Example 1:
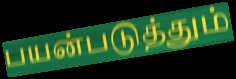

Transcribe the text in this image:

பயன்படுத்தும்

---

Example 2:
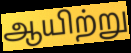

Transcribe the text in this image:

ஆயிற்று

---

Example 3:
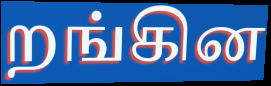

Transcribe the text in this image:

றங்கின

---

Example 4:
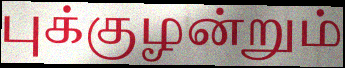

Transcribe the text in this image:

புக்குழன்றும்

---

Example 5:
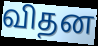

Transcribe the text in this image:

விதன